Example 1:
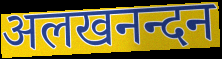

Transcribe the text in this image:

अलखनन्दन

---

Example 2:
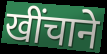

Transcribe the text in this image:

खींचाने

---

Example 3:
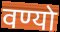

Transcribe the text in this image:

वण्यो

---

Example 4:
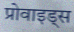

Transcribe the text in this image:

प्रोवाइड्स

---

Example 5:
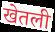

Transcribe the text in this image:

खेतली